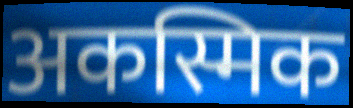
अकस्मिक